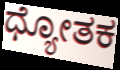
ಧ್ಯೋತಕ